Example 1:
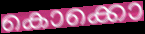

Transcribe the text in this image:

കൊക്കൊ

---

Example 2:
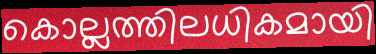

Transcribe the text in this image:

കൊല്ലത്തിലധികമായി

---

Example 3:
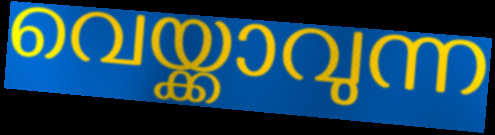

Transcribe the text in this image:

വെയ്ക്കാവുന്ന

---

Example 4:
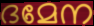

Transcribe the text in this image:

ദമേന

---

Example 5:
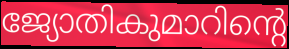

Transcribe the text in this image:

ജ്യോതികുമാറിന്റെ